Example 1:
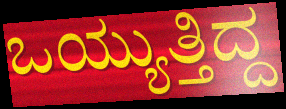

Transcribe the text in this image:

ಒಯ್ಯುತ್ತಿದ್ದ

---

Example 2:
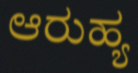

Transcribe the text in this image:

ಆರುಹ್ಯ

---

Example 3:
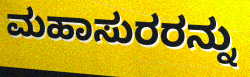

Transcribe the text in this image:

ಮಹಾಸುರರನ್ನು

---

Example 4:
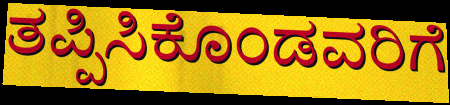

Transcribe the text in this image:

ತಪ್ಪಿಸಿಕೊಂಡವರಿಗೆ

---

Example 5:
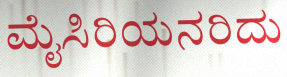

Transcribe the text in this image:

ಮೈಸಿರಿಯನರಿದು